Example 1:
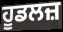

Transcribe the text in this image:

ਹੂਡਲਜ਼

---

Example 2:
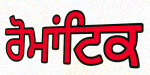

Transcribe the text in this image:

ਰੋਮਾਂਟਿਕ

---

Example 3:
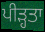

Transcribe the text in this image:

ਪੀੜ੍ਹਤਾ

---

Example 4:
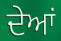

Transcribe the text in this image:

ਦੇਆਂ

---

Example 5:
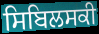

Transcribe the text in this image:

ਸਿਬਿਲਸਕੀ